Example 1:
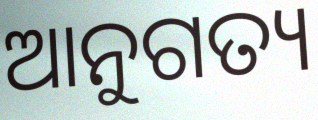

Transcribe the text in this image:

ଆନୁଗତ୍ୟ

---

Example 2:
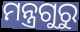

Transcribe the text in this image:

ମନ୍ତ୍ରଗୁରୁ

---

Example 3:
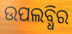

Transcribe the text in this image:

ଉପଲବ୍ଧିର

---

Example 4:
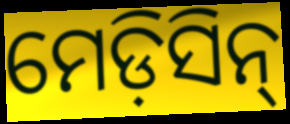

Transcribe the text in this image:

ମେଡ଼ିସିନ୍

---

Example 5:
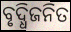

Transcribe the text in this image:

ବୃଦ୍ଧିଜନିତ